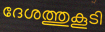
ദേശത്തുകൂടി